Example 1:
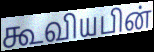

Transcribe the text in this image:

கூவியபின்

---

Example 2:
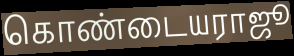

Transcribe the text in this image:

கொண்டையராஜூ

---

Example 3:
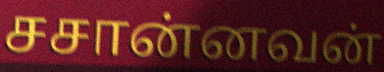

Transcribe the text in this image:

சசான்னவன்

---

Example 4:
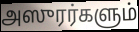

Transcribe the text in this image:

அஸுரர்களும்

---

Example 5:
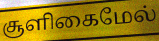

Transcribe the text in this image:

சூளிகைமேல்